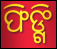
ଫିଙ୍ଗି